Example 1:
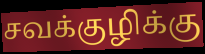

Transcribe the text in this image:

சவக்குழிக்கு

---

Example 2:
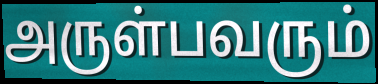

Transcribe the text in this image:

அருள்பவரும்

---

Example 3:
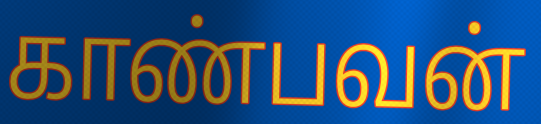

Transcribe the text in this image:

காண்பவன்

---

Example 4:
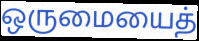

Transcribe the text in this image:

ஒருமையைத்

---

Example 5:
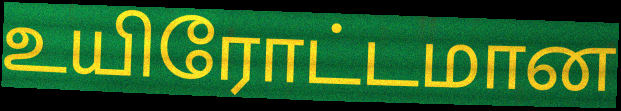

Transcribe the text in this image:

உயிரோட்டமான